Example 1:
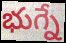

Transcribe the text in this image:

భుగ్నే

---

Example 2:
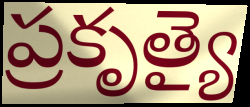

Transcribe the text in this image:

ప్రకృత్యై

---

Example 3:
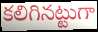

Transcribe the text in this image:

కలిగినట్టుగా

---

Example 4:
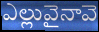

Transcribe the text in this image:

ఎల్లువైనావె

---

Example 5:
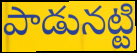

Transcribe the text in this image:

పాడునట్టి